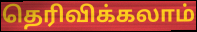
தெரிவிக்கலாம்